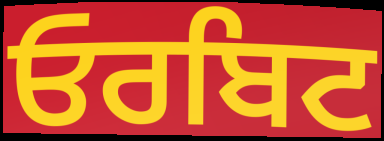
ਓਰਬਿਟ